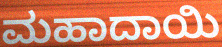
ಮಹಾದಾಯಿ